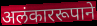
अलंकाररूपाने